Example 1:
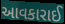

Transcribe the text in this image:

આવકારાઈ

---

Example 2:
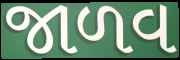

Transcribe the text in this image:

જાળવ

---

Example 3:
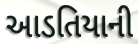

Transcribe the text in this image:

આડતિયાની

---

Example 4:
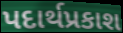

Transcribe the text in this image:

પદાર્થપ્રકાશ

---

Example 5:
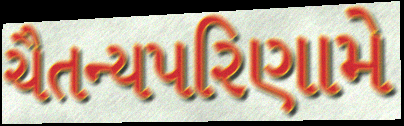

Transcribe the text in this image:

ચૈતન્યપરિણામે